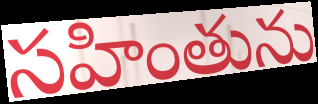
సహింతును